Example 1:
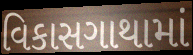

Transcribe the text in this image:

વિકાસગાથામાં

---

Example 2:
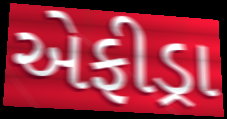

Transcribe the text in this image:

એફીડ્રા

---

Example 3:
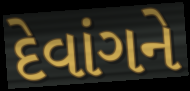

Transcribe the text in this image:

દેવાંગને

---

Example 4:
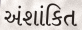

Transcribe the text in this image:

અંશાંકિત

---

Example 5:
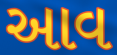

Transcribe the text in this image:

આવ